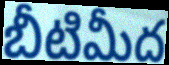
బీటిమీద